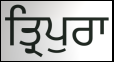
ਤ੍ਰਿਪੁਰਾ